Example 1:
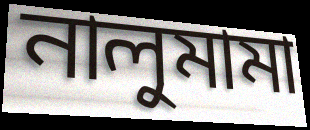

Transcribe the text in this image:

নালুমামা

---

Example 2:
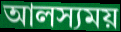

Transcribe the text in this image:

আলস্যময়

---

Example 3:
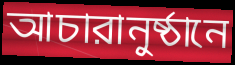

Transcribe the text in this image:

আচারানুষ্ঠানে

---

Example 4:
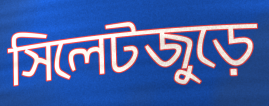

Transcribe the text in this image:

সিলেটজুড়ে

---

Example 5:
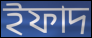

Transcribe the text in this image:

ইফাদ